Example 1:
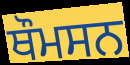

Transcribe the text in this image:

ਥੌਮਸਨ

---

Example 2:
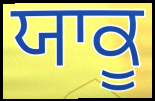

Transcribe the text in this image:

ਯਾਕੂ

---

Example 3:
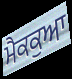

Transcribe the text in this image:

ਮੈਕਕੁਆ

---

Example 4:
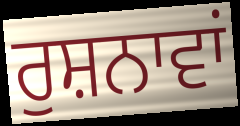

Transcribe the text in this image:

ਰੁਸ਼ਨਾਵਾਂ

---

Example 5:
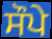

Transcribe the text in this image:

ਸੌਪੇ